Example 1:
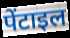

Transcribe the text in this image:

पेंटाइल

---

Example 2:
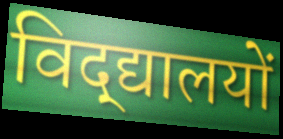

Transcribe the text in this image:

विद्द्यालयों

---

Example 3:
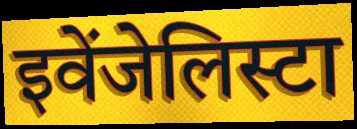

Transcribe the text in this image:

इवेंजेलिस्टा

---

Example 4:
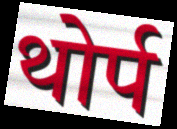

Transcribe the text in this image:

थोर्प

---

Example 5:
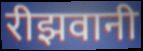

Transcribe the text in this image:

रीझवानी